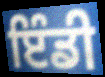
ਇੰਡੀ